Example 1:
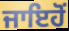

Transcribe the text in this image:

ਜਾਇਹੋਂ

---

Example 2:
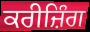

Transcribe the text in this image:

ਕਰੀਜ਼ਿੰਗ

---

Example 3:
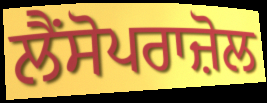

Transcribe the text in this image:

ਲੈਂਸੋਪਰਾਜ਼ੋਲ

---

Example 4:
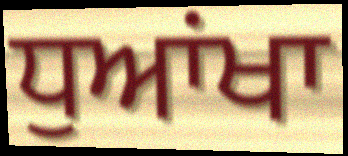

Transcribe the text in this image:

ਧੁਆਂਖਾ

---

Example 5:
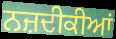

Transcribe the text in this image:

ਨਜ਼ਦੀਕੀਆਂ